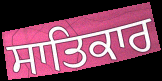
ਸਾਤਿਕਾਰ